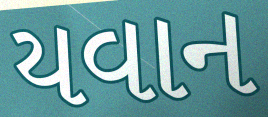
યવાન